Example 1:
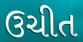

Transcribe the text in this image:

ઉચીત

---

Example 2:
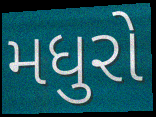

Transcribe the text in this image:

મધુરો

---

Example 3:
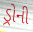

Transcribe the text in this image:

ડ્રોની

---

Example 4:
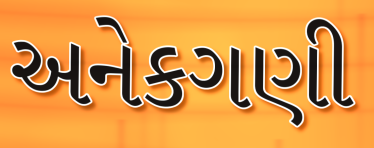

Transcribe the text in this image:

અનેકગણી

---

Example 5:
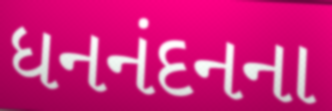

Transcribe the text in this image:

ધનનંદનના